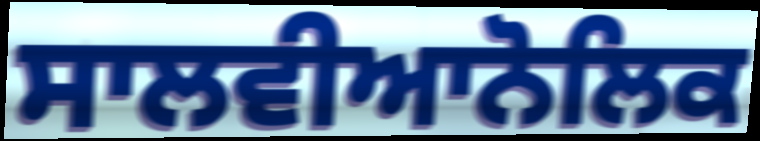
ਸਾਲਵੀਆਨੋਲਿਕ